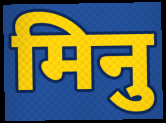
मिनु